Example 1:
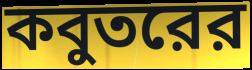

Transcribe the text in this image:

কবুতরের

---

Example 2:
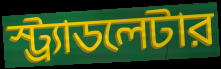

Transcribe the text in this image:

স্ট্র্যাডলেটার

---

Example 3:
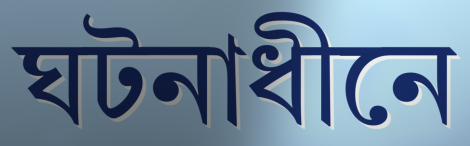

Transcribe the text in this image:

ঘটনাধীনে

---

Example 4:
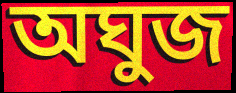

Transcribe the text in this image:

অঘুজ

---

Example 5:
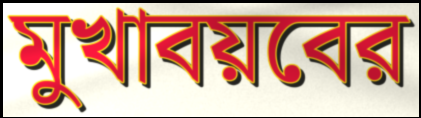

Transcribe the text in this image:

মুখাবয়বের